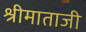
श्रीमाताजी